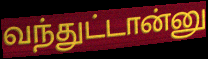
வந்துட்டான்னு